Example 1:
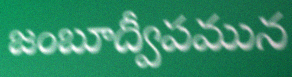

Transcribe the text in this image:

జంబూద్వీపమున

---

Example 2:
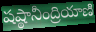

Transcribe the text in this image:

షష్ఠానీంద్రియాణి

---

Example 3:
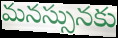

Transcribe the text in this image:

మనస్సునకు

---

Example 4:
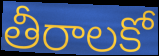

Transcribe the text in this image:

తీరాలకో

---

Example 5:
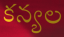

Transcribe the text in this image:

కన్యల